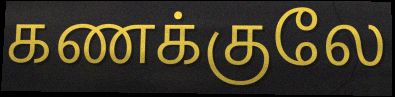
கணக்குலே